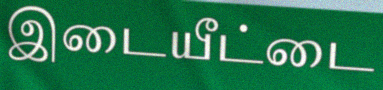
இடையீட்டை